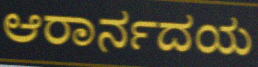
ಆರಾರ್ನದಯ